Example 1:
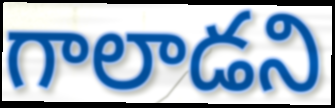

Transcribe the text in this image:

గాలాడని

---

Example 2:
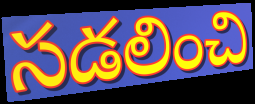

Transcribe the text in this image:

సడలించి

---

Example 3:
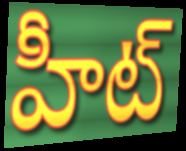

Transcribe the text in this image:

హీట్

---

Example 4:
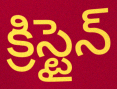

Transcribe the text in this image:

క్రిస్టైన్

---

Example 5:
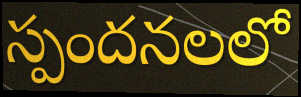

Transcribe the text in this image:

స్పందనలలో